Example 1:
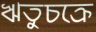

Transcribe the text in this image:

ঋতুচক্রে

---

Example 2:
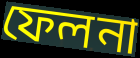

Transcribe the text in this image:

ফেলনা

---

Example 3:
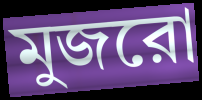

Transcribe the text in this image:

মুজরো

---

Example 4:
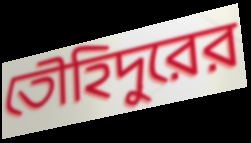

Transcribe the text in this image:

তৌহিদুরের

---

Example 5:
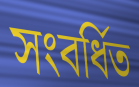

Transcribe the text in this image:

সংবর্ধিত